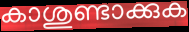
കാശുണ്ടാക്കുക